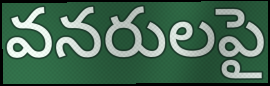
వనరులపై